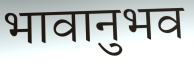
भावानुभव